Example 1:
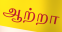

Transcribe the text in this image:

ஆற்றா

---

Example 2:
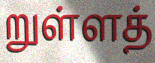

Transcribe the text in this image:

றுள்ளத்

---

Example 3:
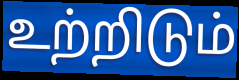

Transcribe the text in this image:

உற்றிடும்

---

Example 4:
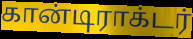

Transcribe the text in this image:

கான்டிராக்டர்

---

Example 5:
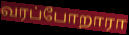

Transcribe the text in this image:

வரப்போறாரா